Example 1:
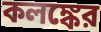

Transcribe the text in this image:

কলঙ্কের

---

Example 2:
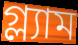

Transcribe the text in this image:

গ্ল্যাম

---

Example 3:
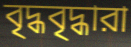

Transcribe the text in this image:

বৃদ্ধবৃদ্ধারা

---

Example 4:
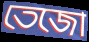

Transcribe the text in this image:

তেজো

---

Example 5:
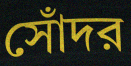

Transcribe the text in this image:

সোঁদর